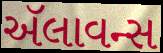
ઍલાવન્સ